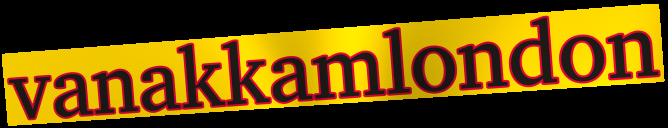
vanakkamlondon